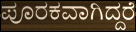
ಪೂರಕವಾಗಿದ್ದರೆ